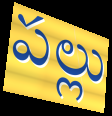
పల్లు